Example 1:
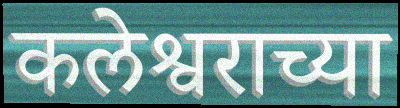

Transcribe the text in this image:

कलेश्वराच्या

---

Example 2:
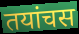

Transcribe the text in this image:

तयांचस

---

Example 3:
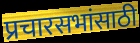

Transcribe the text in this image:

प्रचारसभांसाठी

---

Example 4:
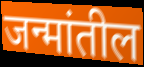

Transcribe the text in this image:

जन्मांतील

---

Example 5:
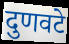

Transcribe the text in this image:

दुणवटे